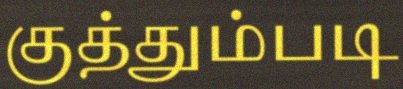
குத்தும்படி